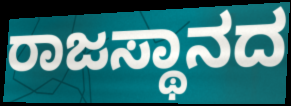
ರಾಜಸ್ಥಾನದ